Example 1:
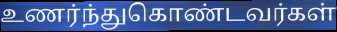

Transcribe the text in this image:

உணர்ந்துகொண்டவர்கள்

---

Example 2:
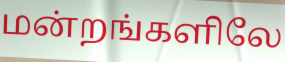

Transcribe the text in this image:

மன்றங்களிலே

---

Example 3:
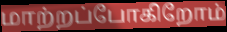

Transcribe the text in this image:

மாற்றப்போகிறோம்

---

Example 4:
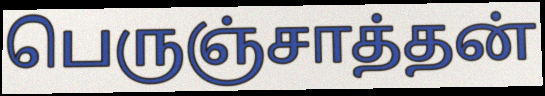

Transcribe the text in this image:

பெருஞ்சாத்தன்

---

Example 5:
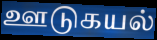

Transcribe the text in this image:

ஊடுகயல்